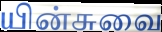
யின்சுவை